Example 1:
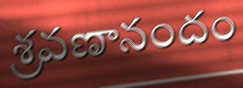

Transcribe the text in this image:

శ్రవణానందం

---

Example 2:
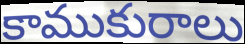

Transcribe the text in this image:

కాముకురాలు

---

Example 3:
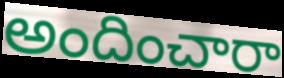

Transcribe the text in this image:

అందించారా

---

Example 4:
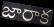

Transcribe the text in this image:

జారాక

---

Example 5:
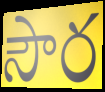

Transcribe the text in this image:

సౌర